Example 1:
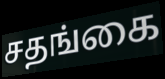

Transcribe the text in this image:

சதங்கை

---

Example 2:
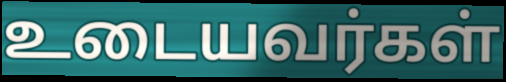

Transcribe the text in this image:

உடையவர்கள்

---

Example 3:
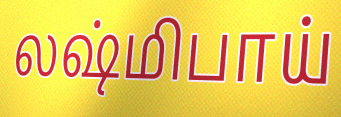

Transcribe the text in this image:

லஷ்மிபாய்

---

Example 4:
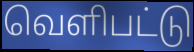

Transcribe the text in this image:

வெளிபட்டு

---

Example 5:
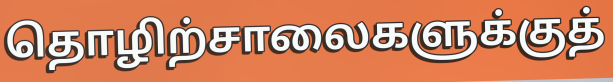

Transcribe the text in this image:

தொழிற்சாலைகளுக்குத்